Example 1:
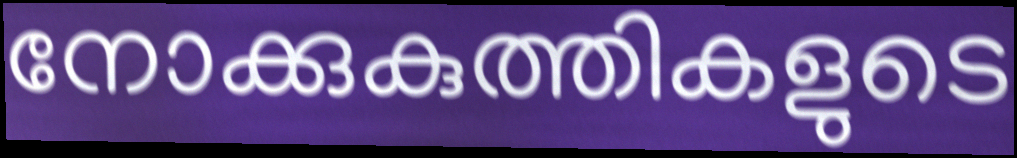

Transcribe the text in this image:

നോക്കുകുത്തികളുടെ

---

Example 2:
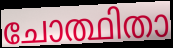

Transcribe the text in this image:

ചോത്ഥിതാ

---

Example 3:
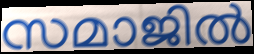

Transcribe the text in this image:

സമാജിൽ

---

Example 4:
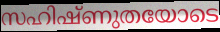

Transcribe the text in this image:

സഹിഷ്ണുതയോടെ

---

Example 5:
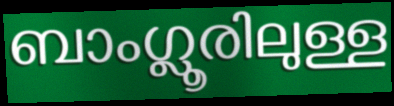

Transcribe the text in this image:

ബാംഗ്ലൂരിലുള്ള